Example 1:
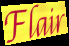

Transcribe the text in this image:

Flair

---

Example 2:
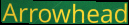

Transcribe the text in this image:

Arrowhead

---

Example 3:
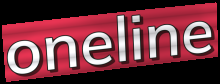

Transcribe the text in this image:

oneline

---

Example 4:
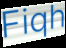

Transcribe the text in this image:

Fiqh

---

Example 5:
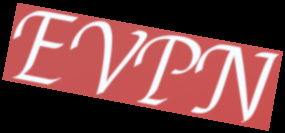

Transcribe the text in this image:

EVPN